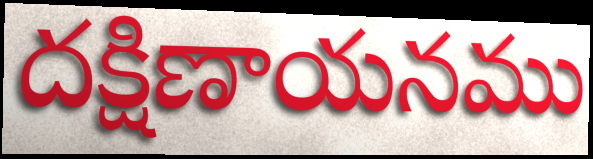
దక్షిణాయనము